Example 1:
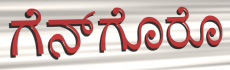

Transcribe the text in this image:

ಗೆನ್‌ಗೊರೊ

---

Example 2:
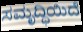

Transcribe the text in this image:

ಸಮೃದ್ಧಿಯಿದೆ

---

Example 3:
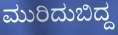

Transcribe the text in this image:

ಮುರಿದುಬಿದ್ದ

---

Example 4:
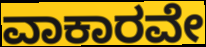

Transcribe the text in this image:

ವಾಕಾರವೇ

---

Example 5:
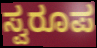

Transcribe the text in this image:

ಸ್ವರೂಪ